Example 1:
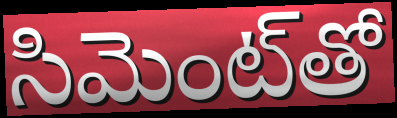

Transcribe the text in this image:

సిమెంట్‌తో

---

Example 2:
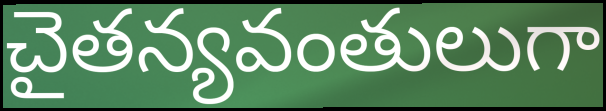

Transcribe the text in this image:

చైతన్యవంతులుగా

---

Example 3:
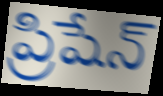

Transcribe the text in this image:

ప్రిషేన్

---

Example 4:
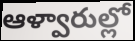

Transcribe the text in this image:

ఆళ్వారుల్లో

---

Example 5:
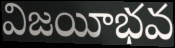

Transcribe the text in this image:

విజయీభవ